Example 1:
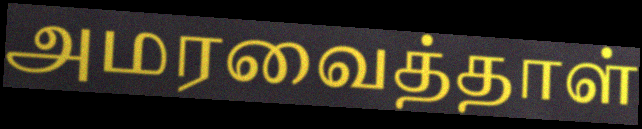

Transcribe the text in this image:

அமரவைத்தாள்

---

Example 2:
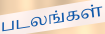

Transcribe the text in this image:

படலங்கள்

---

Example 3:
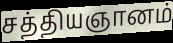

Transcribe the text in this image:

சத்தியஞானம்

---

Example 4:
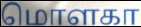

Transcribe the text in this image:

மொளகா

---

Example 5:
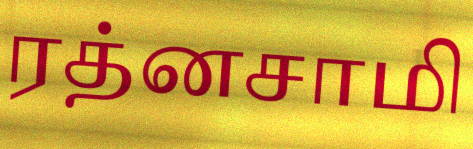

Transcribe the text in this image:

ரத்னசாமி